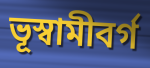
ভূস্বামীবর্গ